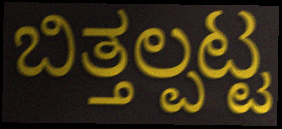
ಬಿತ್ತಲ್ಪಟ್ಟ